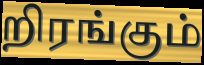
றிரங்கும்